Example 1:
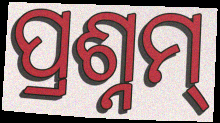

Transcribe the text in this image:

ପ୍ରଶ୍ନମ୍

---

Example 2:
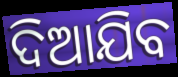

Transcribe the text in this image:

ଦିଆଯିବ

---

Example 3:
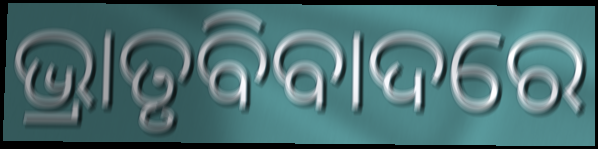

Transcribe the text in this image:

ଭ୍ରାତୃବିବାଦରେ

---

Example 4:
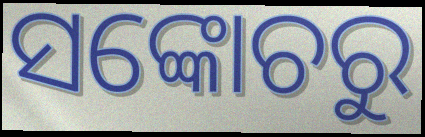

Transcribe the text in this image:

ସଙ୍କୋଚରୁ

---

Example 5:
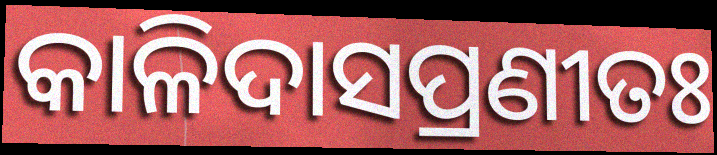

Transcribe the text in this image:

କାଳିଦାସପ୍ରଣୀତଃ